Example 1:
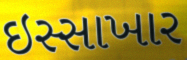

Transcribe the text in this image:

ઇસ્સાખાર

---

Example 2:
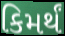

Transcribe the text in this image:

કિમર્થં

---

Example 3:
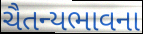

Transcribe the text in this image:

ચૈતન્યભાવના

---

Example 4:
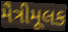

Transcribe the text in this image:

મૈત્રીમૂલક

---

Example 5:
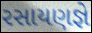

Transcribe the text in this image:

રસાયણજ્ઞે